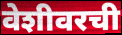
वेशीवरची